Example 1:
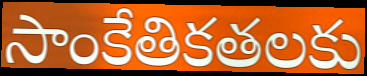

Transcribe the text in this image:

సాంకేతికతలకు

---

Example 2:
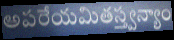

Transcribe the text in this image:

అపరేయమితస్త్వన్యాం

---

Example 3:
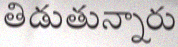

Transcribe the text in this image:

తిడుతున్నారు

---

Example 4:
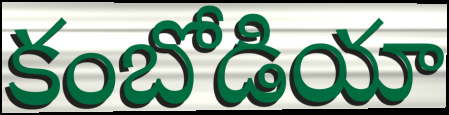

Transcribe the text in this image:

కంబోడియా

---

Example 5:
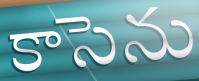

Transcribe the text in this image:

కాసెను